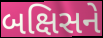
બક્ષિસને